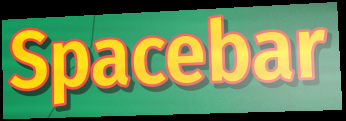
Spacebar